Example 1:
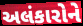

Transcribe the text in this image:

અલંકારોને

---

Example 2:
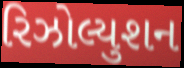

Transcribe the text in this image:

રિઝોલ્યુશન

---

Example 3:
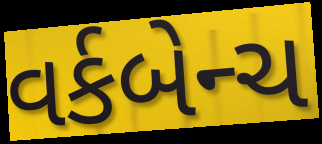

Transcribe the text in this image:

વર્કબેન્ચ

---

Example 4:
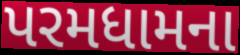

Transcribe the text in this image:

પરમધામના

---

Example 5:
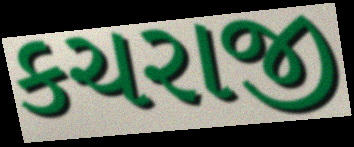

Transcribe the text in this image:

કચરાજી